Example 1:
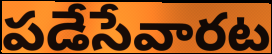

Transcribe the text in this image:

పడేసేవారట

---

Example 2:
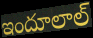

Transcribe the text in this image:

ఇందూలాల్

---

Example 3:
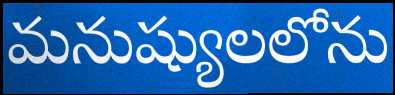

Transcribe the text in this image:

మనుష్యులలోను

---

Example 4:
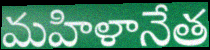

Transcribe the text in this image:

మహిళానేత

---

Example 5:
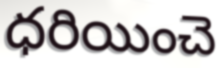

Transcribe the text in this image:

ధరియించె